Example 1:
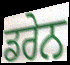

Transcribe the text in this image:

ਡਰੇਨ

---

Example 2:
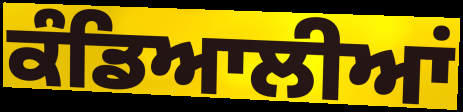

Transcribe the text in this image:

ਕੰਡਿਆਲੀਆਂ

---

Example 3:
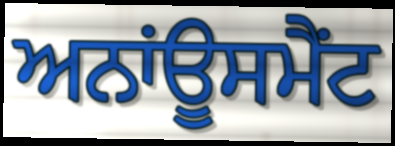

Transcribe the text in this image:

ਅਨਾਂਊਸਮੈਂਟ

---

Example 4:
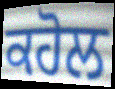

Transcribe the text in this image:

ਕਹੋਲ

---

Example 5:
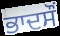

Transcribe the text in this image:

ਭਾਦਸੌਂ